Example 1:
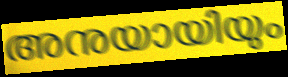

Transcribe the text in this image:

അനുയായിയും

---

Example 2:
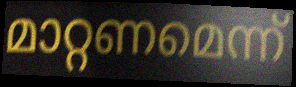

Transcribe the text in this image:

മാറ്റണമെന്ന്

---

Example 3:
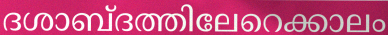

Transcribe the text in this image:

ദശാബ്ദത്തിലേറെക്കാലം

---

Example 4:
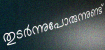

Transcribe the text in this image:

തുടർന്നുപോരുന്നുണ്ട്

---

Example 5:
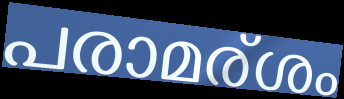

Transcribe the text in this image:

പരാമര്ശം